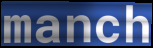
manch